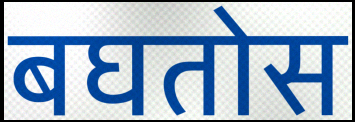
बघतोस